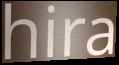
hira